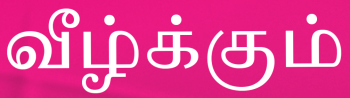
வீழ்க்கும்